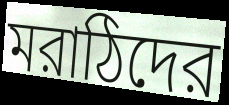
মরাঠিদের